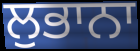
ਲੁਭਾਨਾ